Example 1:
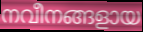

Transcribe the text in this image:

നവീനങ്ങളായ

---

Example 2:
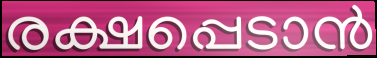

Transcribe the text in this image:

രക്ഷപ്പെടാൻ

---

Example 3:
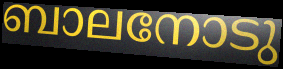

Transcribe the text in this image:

ബാലനോടു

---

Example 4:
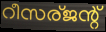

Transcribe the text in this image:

റീസര്ജന്റ്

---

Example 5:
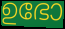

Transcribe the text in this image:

ഉഭോ